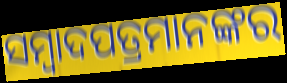
ସମ୍ୱାଦପତ୍ରମାନଙ୍କର